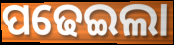
ପଢେଇଲା